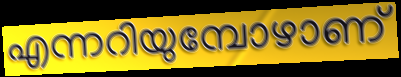
എന്നറിയുമ്പോഴാണ്